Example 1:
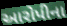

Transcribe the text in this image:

આરોપીના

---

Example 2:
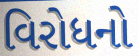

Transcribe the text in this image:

વિરોધનો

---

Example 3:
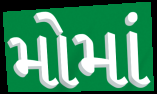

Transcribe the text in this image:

મોમાં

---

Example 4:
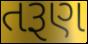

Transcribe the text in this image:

તરૂણ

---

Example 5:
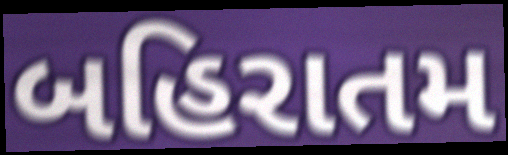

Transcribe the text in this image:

બહિરાતમ